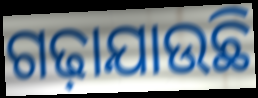
ଗଢ଼ାଯାଉଛି